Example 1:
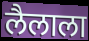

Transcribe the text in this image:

लैलाला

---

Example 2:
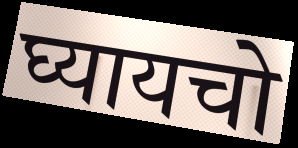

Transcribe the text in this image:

घ्यायचो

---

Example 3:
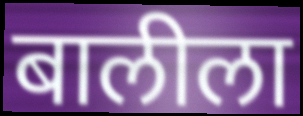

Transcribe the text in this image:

बालीला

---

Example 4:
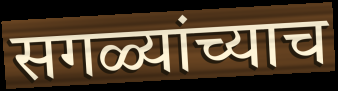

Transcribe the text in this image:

सगळ्यांच्याच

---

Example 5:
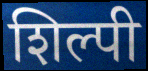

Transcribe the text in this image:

शिल्पी